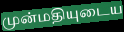
முன்மதியுடைய